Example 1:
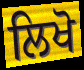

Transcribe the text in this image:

ਲਿਖੋ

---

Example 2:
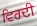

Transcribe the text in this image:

ਵਿਰਦੀ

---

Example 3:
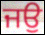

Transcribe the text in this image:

ਜਉ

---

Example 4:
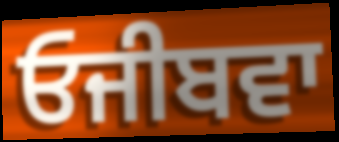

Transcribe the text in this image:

ਓਜੀਬਵਾ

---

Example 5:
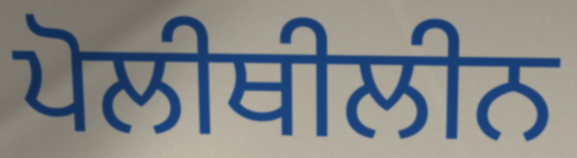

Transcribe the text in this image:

ਪੋਲੀਥੀਲੀਨ